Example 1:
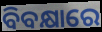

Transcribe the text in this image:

ବିବକ୍ଷାରେ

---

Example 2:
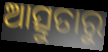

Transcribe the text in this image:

ଆତ୍ସୁତାରୁ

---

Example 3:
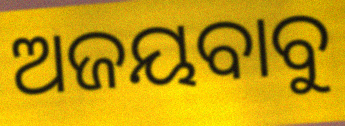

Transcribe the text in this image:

ଅଜୟବାବୁ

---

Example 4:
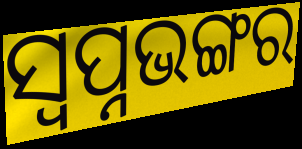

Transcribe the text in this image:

ସ୍ୱପ୍ନଭଙ୍ଗର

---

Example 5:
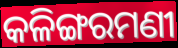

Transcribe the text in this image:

କଳିଙ୍ଗରମଣୀ